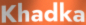
Khadka